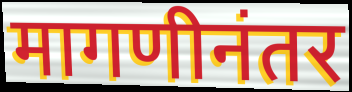
मागणीनंतर